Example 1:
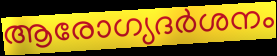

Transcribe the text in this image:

ആരോഗ്യദർശനം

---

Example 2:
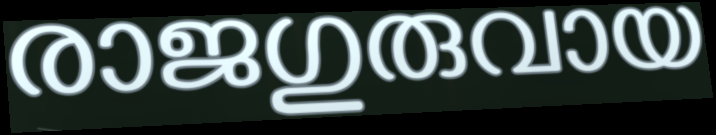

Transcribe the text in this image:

രാജഗുരുവായ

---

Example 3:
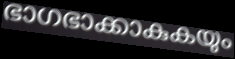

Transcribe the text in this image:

ഭാഗഭാക്കാകുകയും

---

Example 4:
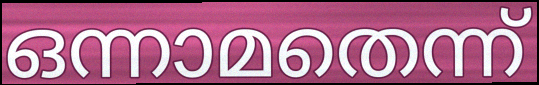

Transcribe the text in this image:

ഒന്നാമതെന്ന്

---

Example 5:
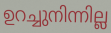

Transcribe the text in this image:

ഉറച്ചുനിന്നില്ല